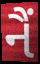
નૈં